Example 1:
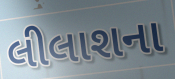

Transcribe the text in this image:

લીલાશના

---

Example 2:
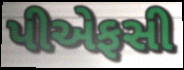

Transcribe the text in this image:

પીએફસી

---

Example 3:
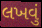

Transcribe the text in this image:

લખવું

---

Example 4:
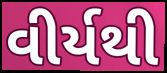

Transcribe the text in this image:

વીર્યથી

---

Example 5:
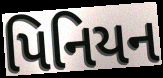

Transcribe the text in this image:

પિનિયન